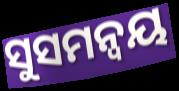
ସୁସମନ୍ୱୟ